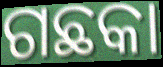
ଗଛକା